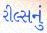
રીલ્સનું